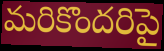
మరికొందరిపై